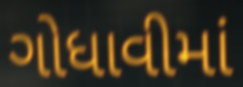
ગોધાવીમાં